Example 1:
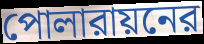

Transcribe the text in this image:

পোলারায়নের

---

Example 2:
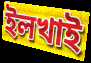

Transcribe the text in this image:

ইলখাই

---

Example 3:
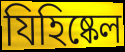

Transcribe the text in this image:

যিহিষ্কেল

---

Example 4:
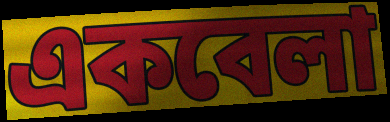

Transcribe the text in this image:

একবেলা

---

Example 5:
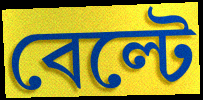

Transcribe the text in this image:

বেল্টে